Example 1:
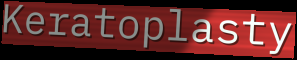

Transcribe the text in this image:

Keratoplasty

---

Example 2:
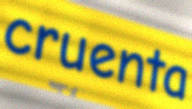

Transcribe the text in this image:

cruenta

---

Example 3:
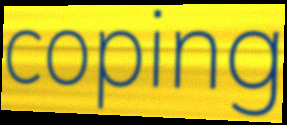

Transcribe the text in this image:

coping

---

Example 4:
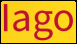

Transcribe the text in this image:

Iago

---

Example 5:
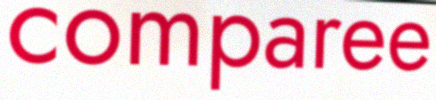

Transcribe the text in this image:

comparee